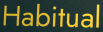
Habitual